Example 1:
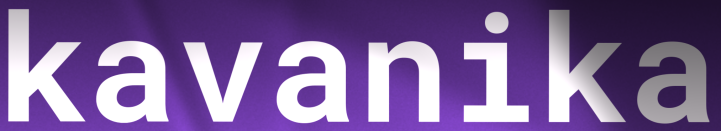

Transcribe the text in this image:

kavanika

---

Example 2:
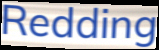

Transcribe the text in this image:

Redding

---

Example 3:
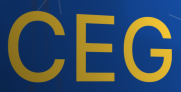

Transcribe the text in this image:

CEG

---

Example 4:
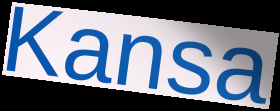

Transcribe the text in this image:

Kansa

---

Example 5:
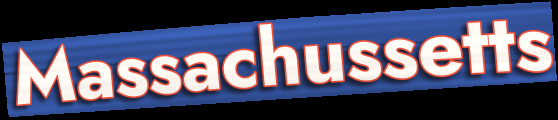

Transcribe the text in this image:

Massachussetts